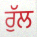
ਰੁੱਲ